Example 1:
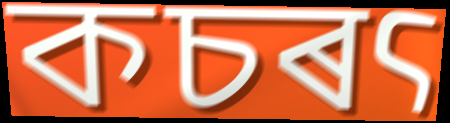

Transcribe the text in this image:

কচৰৎ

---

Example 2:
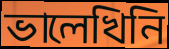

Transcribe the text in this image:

ভালেখিনি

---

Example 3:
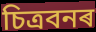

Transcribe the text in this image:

চিত্ৰবনৰ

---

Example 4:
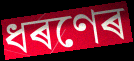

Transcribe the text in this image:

ধৰণেৰ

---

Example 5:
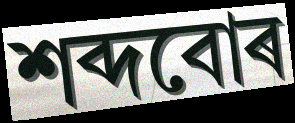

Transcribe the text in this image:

শব্দবোৰ